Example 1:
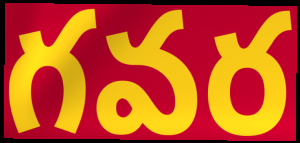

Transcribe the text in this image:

గవర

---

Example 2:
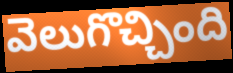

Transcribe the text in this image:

వెలుగొచ్చింది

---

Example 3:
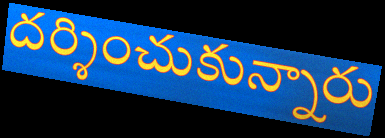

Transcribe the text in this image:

దర్శించుకున్నారు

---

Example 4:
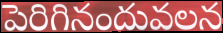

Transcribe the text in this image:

పెరిగినందువలన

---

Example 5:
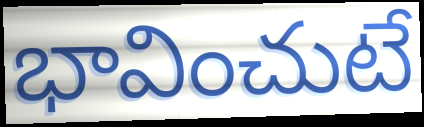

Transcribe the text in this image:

భావించుటే